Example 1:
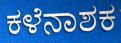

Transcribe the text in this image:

ಕಳೆನಾಶಕ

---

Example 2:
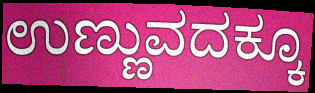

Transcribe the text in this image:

ಉಣ್ಣುವದಕ್ಕೂ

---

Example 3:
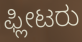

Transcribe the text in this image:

ಫ್ಲೀಟರು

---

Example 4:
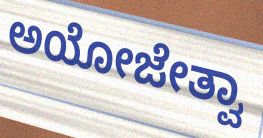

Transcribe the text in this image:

ಅಯೋಜೇತ್ವಾ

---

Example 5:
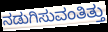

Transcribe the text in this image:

ನಡುಗಿಸುವಂತಿತ್ತು